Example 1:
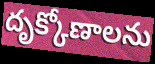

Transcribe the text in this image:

దృక్కోణాలను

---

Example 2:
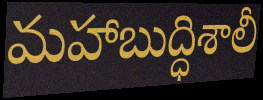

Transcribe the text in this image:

మహాబుద్ధిశాలీ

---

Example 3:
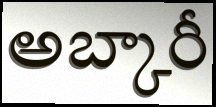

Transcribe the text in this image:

అబ్కారీ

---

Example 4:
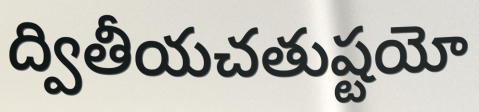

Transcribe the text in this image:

ద్వితీయచతుష్టయో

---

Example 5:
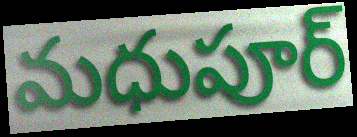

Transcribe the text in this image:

మధుపూర్